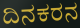
ದಿನಕರನ